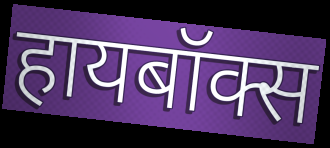
हायबॉक्स